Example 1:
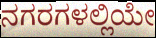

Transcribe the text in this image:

ನಗರಗಳಲ್ಲಿಯೇ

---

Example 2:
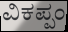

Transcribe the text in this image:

ವಿಕಪ್ಪಂ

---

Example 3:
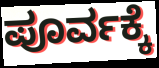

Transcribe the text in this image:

ಪೂರ್ವಕ್ಕೆ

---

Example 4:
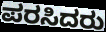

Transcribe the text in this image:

ಪರಸಿದರು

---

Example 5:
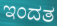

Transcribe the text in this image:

ಇಂದತ